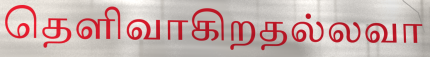
தெளிவாகிறதல்லவா